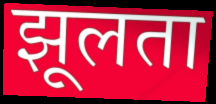
झूलता